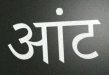
आंट